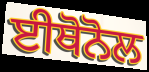
ਈਥੋਨੋਲ